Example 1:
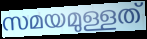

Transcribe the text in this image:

സമയമുള്ളത്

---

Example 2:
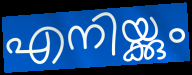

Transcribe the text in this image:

എനിയ്ക്കും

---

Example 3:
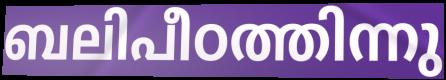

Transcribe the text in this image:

ബലിപീഠത്തിന്നു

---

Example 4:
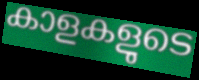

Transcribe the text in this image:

കാളകളുടെ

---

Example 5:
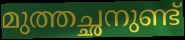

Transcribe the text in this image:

മുത്തച്ഛനുണ്ട്